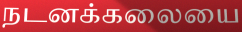
நடனக்கலையை